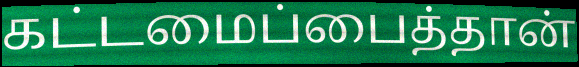
கட்டமைப்பைத்தான்